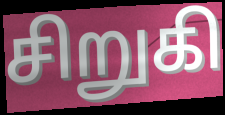
சிறுகி